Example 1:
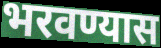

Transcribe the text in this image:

भरवण्यास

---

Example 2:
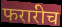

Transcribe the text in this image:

फरारीच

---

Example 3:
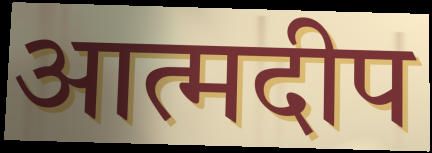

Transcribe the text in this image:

आत्मदीप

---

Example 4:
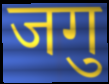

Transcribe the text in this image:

जगु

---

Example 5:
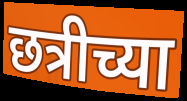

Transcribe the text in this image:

छत्रीच्या